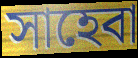
সাহেবা